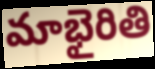
మాభైరితి